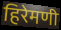
हिरेमणी